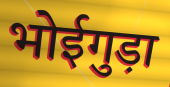
भोईगुड़ा